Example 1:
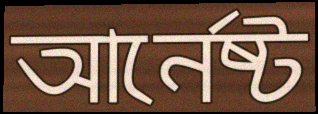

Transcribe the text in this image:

আৰ্নেষ্ট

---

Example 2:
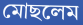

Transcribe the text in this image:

মোছলেম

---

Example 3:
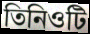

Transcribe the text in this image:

তিনিওটি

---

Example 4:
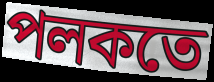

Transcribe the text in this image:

পলকতে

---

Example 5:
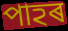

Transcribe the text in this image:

পাহৰ